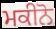
ਮਕੀਨੋ